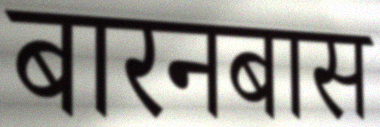
बारनबास